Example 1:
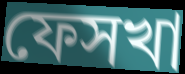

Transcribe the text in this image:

ফেসখা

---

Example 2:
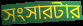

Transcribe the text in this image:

সংসারটার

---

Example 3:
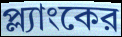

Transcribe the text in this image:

প্ল্যাংকের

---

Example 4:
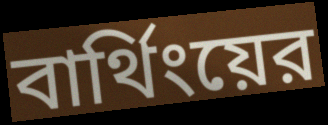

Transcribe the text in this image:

বার্থিংয়ের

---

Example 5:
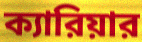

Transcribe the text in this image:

ক্যারিয়ার